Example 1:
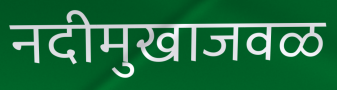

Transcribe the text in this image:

नदीमुखाजवळ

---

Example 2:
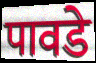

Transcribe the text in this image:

पावडे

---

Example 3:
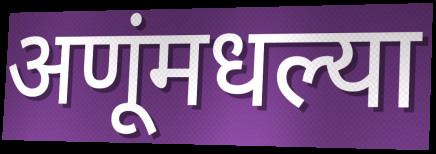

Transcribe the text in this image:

अणूंमधल्या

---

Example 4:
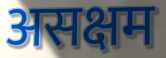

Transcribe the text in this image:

असक्षम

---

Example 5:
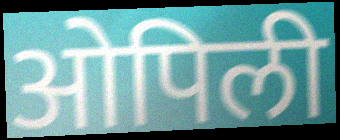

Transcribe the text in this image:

ओपिली